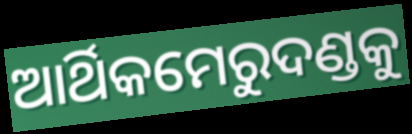
ଆର୍ଥିକମେରୁଦଣ୍ଡକୁ